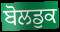
ਬੋਲਡੁਕ